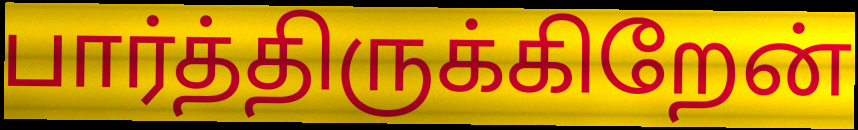
பார்த்திருக்கிறேன்